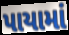
પાયામાં